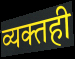
व्यक्तही